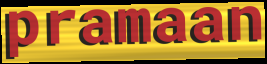
pramaan